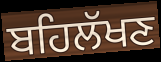
ਬਹਿਲੱਖਣ